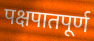
पक्षपातपूर्ण